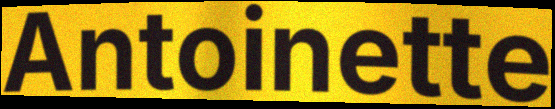
Antoinette